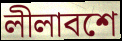
লীলাবশে